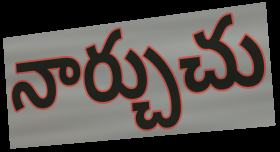
నార్చుచు